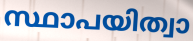
സ്ഥാപയിത്വാ